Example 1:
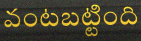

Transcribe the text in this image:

వంటబట్టింది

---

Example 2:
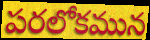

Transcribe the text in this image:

పరలోకమున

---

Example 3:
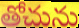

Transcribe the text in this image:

తోచును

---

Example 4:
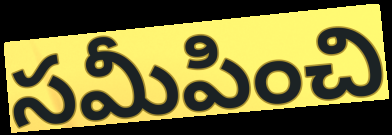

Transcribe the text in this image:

సమీపించి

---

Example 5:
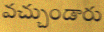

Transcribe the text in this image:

వచ్చుండారు